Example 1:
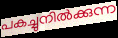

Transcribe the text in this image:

പകച്ചുനിൽക്കുന്ന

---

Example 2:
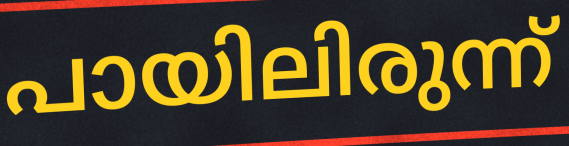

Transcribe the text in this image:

പായിലിരുന്ന്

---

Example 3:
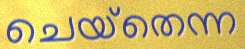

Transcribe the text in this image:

ചെയ്‌തെന്ന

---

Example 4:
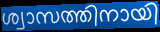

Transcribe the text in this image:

ശ്വാസത്തിനായി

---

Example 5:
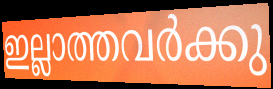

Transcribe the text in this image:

ഇല്ലാത്തവർക്കു